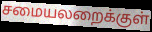
சமையலறைக்குள்